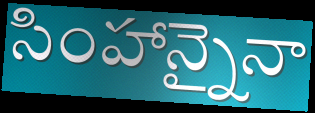
సింహాన్నైనా